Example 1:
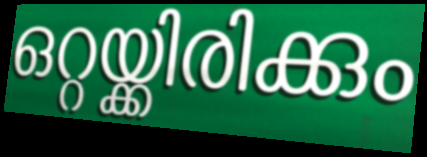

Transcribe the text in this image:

ഒറ്റയ്ക്കിരിക്കും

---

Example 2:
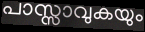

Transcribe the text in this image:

പാസ്സാവുകയും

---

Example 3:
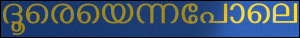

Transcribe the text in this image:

ദൂരെയെന്നപോലെ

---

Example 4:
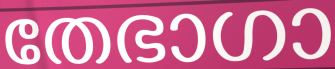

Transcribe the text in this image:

തേഭാഗാ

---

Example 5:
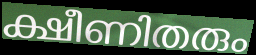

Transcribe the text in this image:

ക്ഷീണിതരും